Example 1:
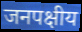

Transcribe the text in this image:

जनपक्षीय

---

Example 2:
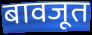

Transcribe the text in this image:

बावजूत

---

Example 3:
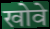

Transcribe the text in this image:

खोवे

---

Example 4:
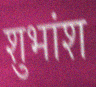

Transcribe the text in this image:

शुभांश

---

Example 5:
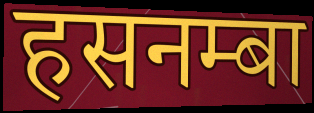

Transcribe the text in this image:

हसनम्बा